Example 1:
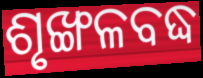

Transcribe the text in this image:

ଶୃଙ୍ଖଳବଦ୍ଧ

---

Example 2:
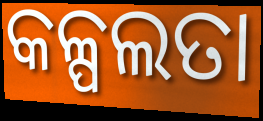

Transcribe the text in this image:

କଳ୍ପଲତା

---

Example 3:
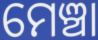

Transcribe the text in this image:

ମେଞ୍ଚା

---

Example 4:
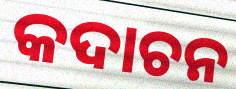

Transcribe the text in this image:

କଦାଚନ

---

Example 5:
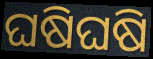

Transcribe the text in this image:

ଘଷିଘଷି